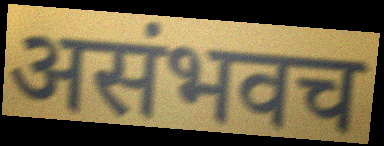
असंभवच